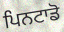
ਪਿਨਟਾਡੋ